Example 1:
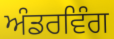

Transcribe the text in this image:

ਅੰਡਰਵਿੰਗ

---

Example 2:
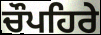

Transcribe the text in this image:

ਚੌਪਹਿਰੇ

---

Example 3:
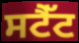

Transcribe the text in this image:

ਸਟੈੱਟ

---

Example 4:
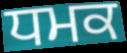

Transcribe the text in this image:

ਧਮਕ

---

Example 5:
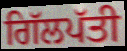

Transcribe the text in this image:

ਗਿੱਲਪੱਤੀ